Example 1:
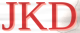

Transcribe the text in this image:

JKD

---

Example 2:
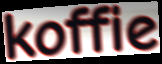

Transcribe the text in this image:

koffie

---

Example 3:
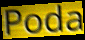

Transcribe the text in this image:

Poda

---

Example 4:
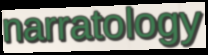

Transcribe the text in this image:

narratology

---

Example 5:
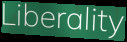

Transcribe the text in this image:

Liberality